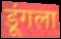
डूंगला